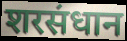
शरसंधान